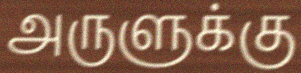
அருளுக்கு